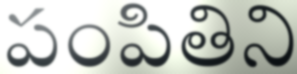
పంపితిని